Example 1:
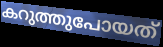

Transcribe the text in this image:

കറുത്തുപോയത്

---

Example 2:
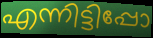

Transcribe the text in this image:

എന്നിട്ടിപ്പോ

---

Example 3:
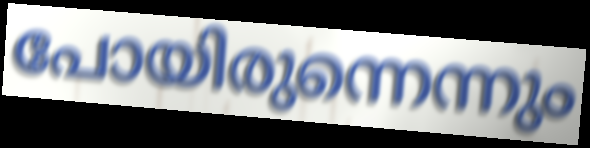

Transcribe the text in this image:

പോയിരുന്നെന്നും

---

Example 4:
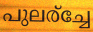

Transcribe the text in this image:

പുലര്ച്ചേ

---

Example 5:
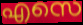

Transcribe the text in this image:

എസെ